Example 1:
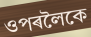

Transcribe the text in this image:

ওপৰলৈকে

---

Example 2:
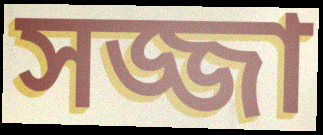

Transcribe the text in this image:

সজ্জা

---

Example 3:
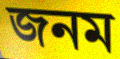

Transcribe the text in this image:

জনম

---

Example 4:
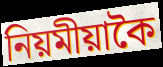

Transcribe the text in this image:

নিয়মীয়াকৈ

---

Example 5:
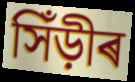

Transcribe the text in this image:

সিঁড়ীৰ